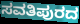
ಸವತಿಪುರದ